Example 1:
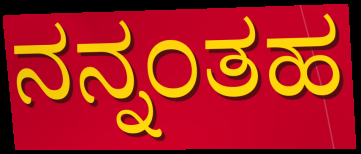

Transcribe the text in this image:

ನನ್ನಂತಹ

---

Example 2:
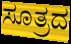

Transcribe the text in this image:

ಸೂತ್ರದ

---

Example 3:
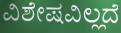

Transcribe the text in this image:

ವಿಶೇಷವಿಲ್ಲದೆ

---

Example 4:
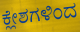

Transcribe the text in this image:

ಕ್ಲೇಶಗಳಿಂದ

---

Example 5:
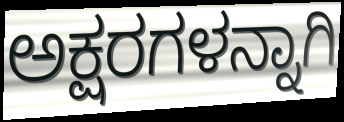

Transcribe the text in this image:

ಅಕ್ಷರಗಳನ್ನಾಗಿ